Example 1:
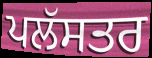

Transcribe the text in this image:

ਪਲੱਸਤਰ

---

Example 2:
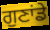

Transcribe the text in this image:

ਗੁਣਾਂਡੇ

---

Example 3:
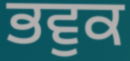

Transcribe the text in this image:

ਭਵੁਕ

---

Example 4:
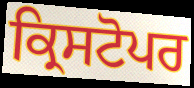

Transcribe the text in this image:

ਕ੍ਰਿਸਟੋਪਰ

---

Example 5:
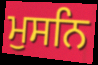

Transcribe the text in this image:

ਮੁਸਨਿ